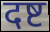
दष्ट